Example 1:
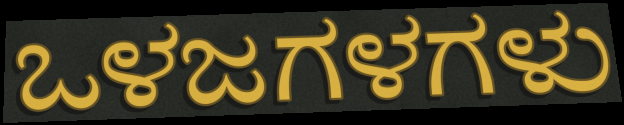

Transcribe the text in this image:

ಒಳಜಗಳಗಳು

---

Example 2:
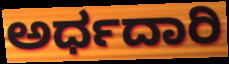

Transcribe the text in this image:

ಅರ್ಧದಾರಿ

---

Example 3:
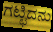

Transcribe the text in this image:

ಗಟ್ಟಿದನು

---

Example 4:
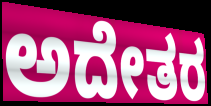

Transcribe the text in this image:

ಅದೇತರ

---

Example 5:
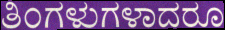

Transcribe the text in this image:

ತಿಂಗಳುಗಳಾದರೂ